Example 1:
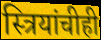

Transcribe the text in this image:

स्त्रियांचीही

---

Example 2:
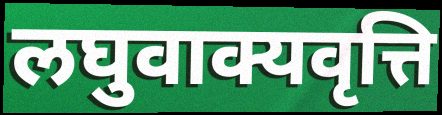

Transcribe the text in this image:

लघुवाक्यवृत्ति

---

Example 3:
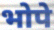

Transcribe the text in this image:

भोपे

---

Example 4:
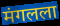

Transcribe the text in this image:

मंगलला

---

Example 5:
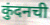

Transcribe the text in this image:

कुंदनची